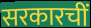
सरकारचीं